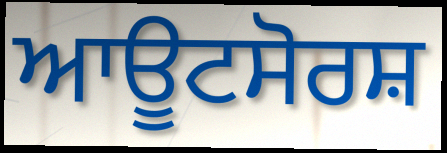
ਆਊਟਸੋਰਸ਼